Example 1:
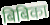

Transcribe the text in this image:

बिबिका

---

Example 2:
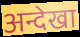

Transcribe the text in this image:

अन्देखा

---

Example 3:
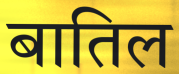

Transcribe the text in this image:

बातिल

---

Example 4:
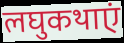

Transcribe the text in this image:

लघुकथाएं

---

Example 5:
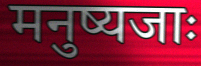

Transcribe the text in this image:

मनुष्यजाः